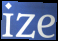
ize